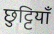
छुट्टियाँ